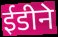
ईडीने